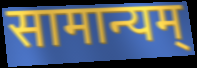
सामान्यम्